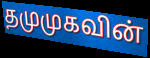
தமுமுகவின்